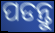
ପଡନ୍ତୁ